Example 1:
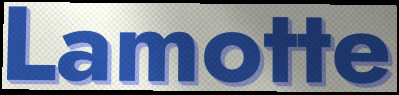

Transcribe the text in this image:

Lamotte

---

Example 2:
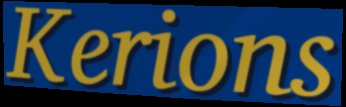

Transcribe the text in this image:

Kerions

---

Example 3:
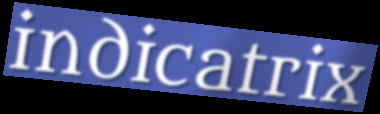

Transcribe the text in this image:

indicatrix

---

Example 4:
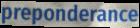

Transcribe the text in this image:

preponderance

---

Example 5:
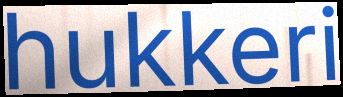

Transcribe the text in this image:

hukkeri